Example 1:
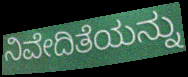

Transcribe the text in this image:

ನಿವೇದಿತೆಯನ್ನು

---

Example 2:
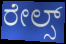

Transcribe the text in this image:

ರೇಲ್ಸ್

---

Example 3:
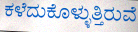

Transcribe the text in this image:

ಕಳೆದುಕೊಳ್ಳುತ್ತಿರುವೆ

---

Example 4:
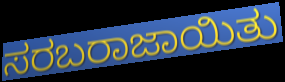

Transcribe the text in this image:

ಸರಬರಾಜಾಯಿತು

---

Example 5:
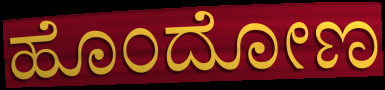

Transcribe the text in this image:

ಹೊಂದೋಣ